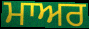
ਮਾਅਰ